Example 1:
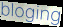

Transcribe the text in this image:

bloging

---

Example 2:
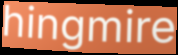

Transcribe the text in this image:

hingmire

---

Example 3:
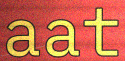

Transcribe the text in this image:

aat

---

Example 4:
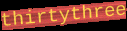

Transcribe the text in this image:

thirtythree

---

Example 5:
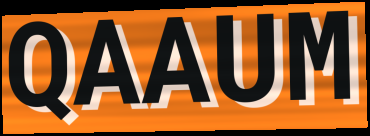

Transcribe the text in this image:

QAAUM